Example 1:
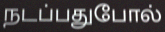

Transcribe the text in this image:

நடப்பதுபோல்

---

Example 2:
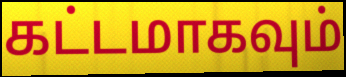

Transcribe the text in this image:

கட்டமாகவும்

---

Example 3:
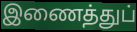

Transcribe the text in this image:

இணைத்துப்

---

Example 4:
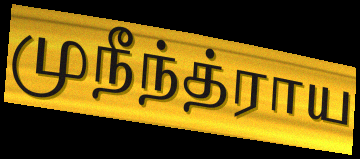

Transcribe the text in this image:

முநீந்த்ராய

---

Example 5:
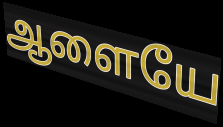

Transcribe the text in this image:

ஆளையே